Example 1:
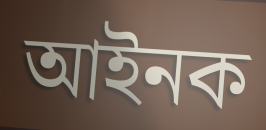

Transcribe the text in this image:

আইনক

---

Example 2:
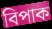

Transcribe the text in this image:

বিপাক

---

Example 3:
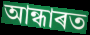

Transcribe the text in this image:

আন্ধাৰত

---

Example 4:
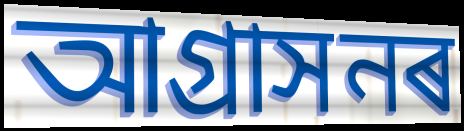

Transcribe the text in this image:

আগ্ৰাসনৰ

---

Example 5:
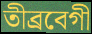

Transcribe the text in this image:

তীব্ৰবেগী